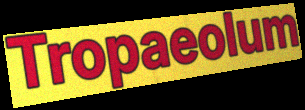
Tropaeolum